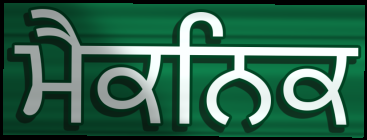
ਮੈਕਨਿਕ